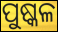
ପୁଷ୍କଳ